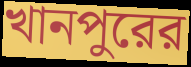
খানপুরের